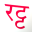
रट्ट